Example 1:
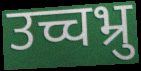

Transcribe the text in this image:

उच्चभ्रु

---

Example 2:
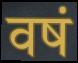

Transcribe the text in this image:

वषं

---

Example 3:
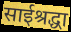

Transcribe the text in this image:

साईश्रद्धा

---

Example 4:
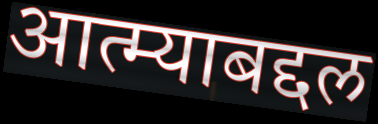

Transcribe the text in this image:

आत्म्याबद्दल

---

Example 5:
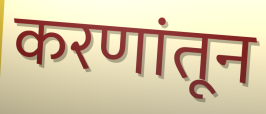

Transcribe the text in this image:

करणांतून